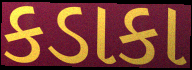
કડાકા